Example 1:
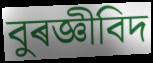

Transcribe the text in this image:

বুৰজ্ঞীবিদ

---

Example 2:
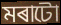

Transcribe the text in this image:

মৰাটো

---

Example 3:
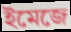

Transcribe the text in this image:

ইমেজে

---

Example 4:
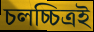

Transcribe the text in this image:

চলচ্চিত্ৰই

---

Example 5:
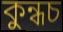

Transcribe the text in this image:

কুন্ধচ